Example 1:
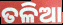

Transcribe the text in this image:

ତଳିଆ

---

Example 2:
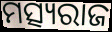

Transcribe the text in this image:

ମତ୍ସ୍ୟରାଜ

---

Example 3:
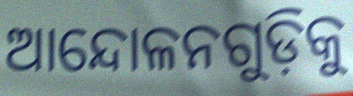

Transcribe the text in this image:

ଆନ୍ଦୋଳନଗୁଡ଼ିକୁ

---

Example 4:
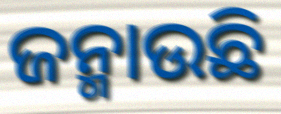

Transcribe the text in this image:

ଜନ୍ମାଉଛି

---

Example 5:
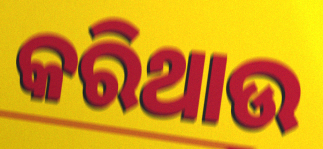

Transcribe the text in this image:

କରିଥାଉ